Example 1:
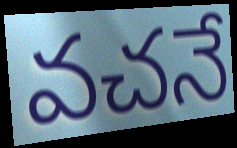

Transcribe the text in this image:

వచనే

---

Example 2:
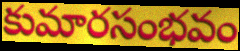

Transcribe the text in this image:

కుమారసంభవం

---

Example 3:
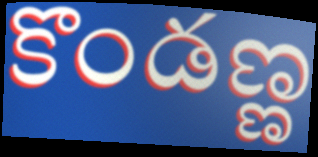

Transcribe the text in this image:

కొండణ్ణ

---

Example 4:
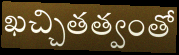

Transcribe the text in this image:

ఖచ్చితత్వంతో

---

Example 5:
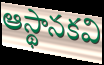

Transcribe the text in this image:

ఆస్థానకవి